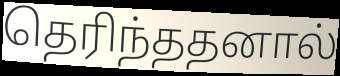
தெரிந்ததனால்